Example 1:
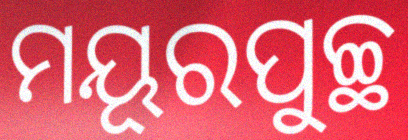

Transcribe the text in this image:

ମୟୂରପୁଚ୍ଛ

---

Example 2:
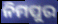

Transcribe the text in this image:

ନିମପୁର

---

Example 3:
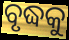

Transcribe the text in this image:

ବୃଦ୍ଧକୁ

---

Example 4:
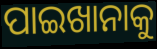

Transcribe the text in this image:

ପାଇଖାନାକୁ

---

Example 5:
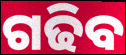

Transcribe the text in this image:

ଗଢିବ